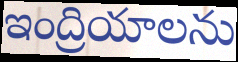
ఇంద్రియాలను